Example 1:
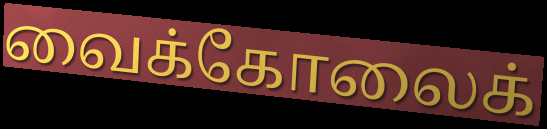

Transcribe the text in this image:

வைக்கோலைக்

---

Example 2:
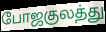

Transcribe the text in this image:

போஜகுலத்து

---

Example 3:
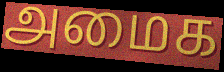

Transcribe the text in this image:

அமைக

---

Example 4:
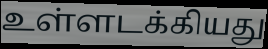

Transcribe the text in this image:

உள்ளடக்கியது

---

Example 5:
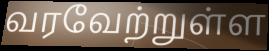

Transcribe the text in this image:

வரவேற்றுள்ள